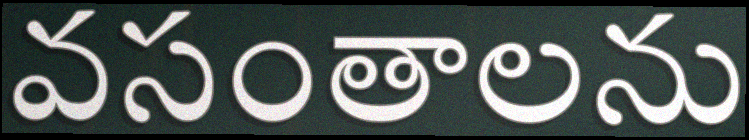
వసంతాలను